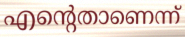
എന്റെതാണെന്ന്